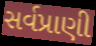
સર્વપ્રાણી